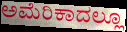
ಅಮೆರಿಕಾದಲ್ಲೂ